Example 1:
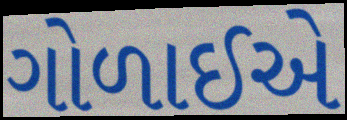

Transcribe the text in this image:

ગોળાઈએ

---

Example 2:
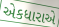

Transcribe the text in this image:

એકધારાએ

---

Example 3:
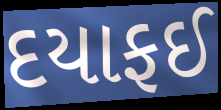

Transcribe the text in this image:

દયાફઈ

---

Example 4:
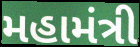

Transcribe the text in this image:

મહામંત્રી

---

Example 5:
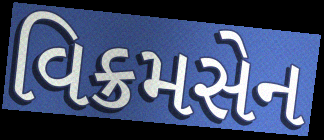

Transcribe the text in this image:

વિક્રમસેન